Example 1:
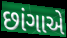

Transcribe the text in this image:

છાંગાએ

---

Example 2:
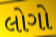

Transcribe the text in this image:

લોગો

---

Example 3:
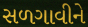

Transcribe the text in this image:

સળગાવીને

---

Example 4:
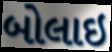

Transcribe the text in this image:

બોલાઇ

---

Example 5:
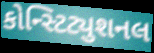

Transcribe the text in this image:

કોન્સ્ટિટ્યુશનલ